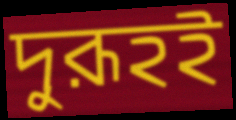
দুরূহই